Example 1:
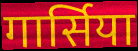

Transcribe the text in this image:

गार्सिया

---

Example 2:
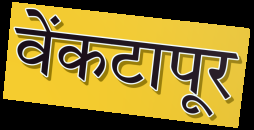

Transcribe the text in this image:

वेंकटापूर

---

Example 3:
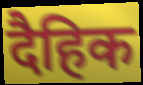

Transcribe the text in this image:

दैहिक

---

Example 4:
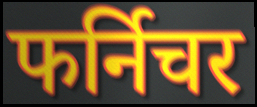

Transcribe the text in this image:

फर्निचर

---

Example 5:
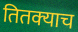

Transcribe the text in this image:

तितक्‍याच